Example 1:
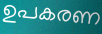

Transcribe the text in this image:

ഉപകരണ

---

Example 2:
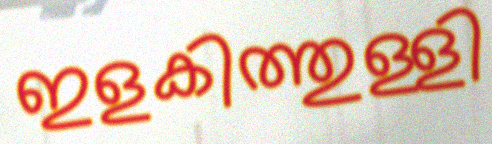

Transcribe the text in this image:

ഇളകിത്തുള്ളി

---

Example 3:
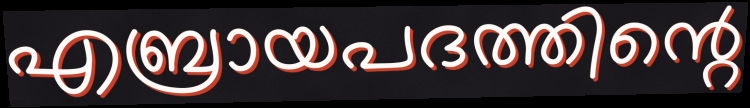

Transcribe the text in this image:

എബ്രായപദത്തിന്റെ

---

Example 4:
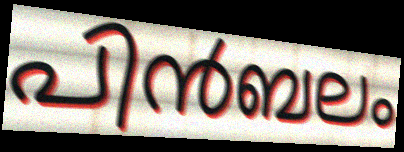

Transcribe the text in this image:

പിൻബലം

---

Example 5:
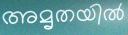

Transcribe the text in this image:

അമൃതയിൽ